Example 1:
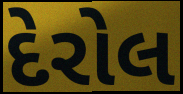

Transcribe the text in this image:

દેરોલ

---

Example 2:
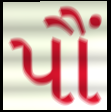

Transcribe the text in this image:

પૌં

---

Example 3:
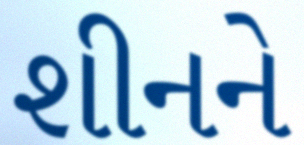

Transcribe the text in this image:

શીનને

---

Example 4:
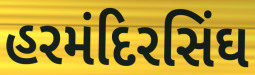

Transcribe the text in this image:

હરમંદિરસિંઘ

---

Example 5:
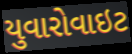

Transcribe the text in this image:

યુવારોવાઇટ